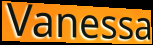
Vanessa